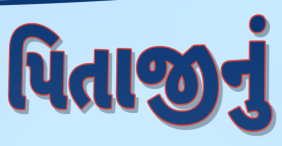
પિતાજીનું